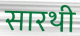
सारथी